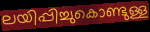
ലയിപ്പിച്ചുകൊണ്ടുള്ള